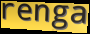
renga